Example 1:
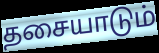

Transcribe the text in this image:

தசையாடும்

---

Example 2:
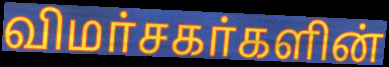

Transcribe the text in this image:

விமர்சகர்களின்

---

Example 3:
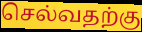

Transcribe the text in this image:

செல்வதற்கு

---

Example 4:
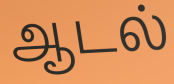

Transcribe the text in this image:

ஆடல்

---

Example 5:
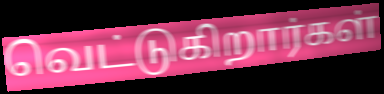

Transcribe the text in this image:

வெட்டுகிறார்கள்